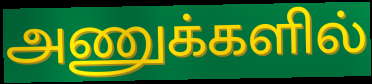
அணுக்களில்